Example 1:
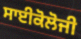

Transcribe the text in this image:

ਸਾਈਕੋਲੋਜੀ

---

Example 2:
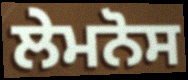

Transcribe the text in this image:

ਲੇਮਨੋਸ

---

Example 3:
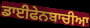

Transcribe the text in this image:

ਡਾਈਫੇਨਬਾਚੀਆ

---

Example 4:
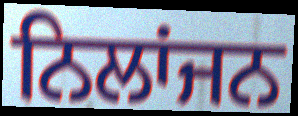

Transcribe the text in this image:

ਨਿਲਾਂਜਨ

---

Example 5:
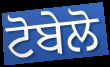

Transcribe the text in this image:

ਟੋਬੇਲੋ